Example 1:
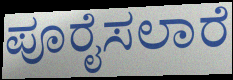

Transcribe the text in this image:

ಪೂರೈಸಲಾರೆ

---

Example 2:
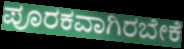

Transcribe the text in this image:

ಪೂರಕವಾಗಿರಬೇಕೆ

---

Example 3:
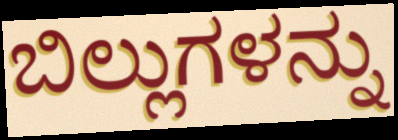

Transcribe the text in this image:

ಬಿಲ್ಲುಗಳನ್ನು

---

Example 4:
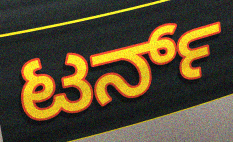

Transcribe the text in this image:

ಟರ್ನ್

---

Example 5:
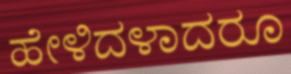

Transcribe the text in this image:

ಹೇಳಿದಳಾದರೂ